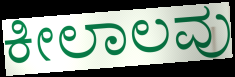
ಕೀಲಾಲವು